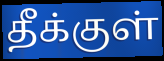
தீக்குள்